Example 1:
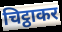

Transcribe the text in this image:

चिट्ठाकर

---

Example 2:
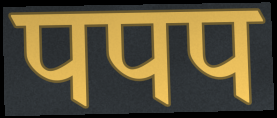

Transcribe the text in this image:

पपप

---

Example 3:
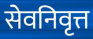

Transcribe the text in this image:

सेवनिवृत्त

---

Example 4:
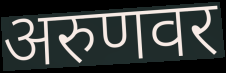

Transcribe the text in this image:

अरुणवर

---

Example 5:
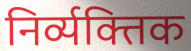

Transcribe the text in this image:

निर्व्यक्तिक